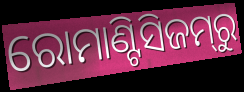
ରୋମାଣ୍ଟିସିଜମ୍‌ରୁ